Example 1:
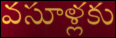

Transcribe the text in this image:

వసూళ్లకు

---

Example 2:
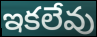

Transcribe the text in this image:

ఇకలేవు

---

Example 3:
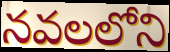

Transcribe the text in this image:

నవలలోని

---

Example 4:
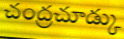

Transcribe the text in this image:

చంద్రచూడ్కు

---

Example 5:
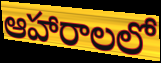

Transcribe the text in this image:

ఆహారాలలో